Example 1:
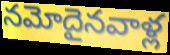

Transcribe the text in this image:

నమోదైనవాళ్ల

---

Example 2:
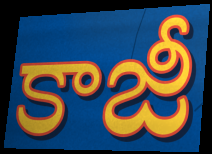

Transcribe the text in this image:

కాజీ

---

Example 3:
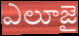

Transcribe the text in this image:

ఎలూజై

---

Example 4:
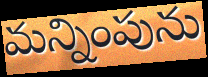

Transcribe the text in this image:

మన్నింపును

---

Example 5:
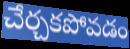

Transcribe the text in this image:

చేర్చకపోవడం